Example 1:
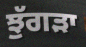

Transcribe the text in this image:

ਝੁੱਗੜਾ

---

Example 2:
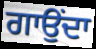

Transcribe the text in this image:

ਗਾਉਂਦਾ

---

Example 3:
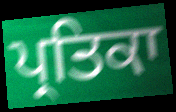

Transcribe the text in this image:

ਪ੍ਰਤਿਕਾ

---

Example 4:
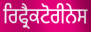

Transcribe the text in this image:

ਰਿਫ੍ਰੈਕਟੋਰੀਨੇਸ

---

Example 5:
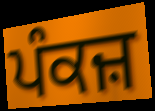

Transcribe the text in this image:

ਪੰਕਜ਼